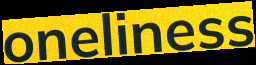
oneliness